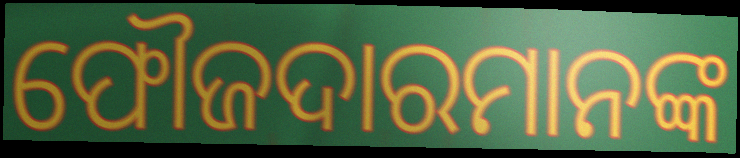
ଫୌଜଦାରମାନଙ୍କ